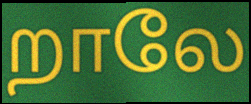
றாலே